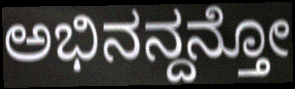
ಅಭಿನನ್ದನ್ತೋ